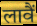
लावैं